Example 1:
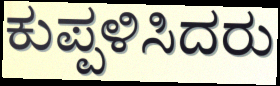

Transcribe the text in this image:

ಕುಪ್ಪಳಿಸಿದರು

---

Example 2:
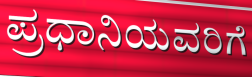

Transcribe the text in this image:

ಪ್ರಧಾನಿಯವರಿಗೆ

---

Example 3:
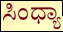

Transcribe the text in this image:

ಸಿಂಧ್ಯಾ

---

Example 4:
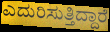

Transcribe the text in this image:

ಎದುರಿಸುತ್ತಿದ್ದಾರೆ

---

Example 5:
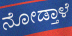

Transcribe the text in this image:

ನೋಡ್ತಾಳೆ